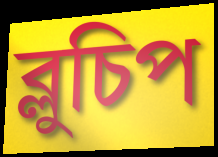
ব্লুচিপ